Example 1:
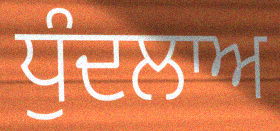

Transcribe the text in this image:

ਧੁੰਦਲਾਅ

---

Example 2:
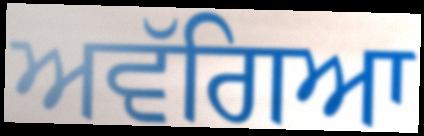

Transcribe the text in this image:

ਅਵੱਗਿਆ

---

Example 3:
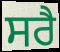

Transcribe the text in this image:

ਸਰੈ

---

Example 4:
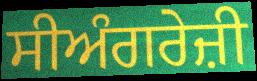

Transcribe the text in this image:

ਸੀਅੰਗਰੇਜ਼ੀ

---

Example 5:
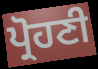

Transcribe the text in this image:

ਪ੍ਰੋਹਣੀ